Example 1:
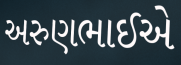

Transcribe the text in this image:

અરુણભાઈએ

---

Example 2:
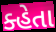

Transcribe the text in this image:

ક્હેતા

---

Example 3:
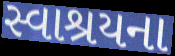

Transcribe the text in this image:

સ્વાશ્રયના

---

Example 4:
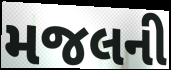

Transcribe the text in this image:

મજલની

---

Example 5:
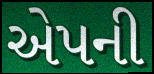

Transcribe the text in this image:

એપની